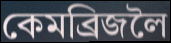
কেমব্ৰিজলৈ